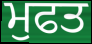
ਮੁਫਤ